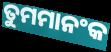
ତୁମମାନଂକ